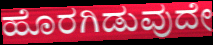
ಹೊರಗಿಡುವುದೇ